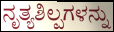
ನೃತ್ಯಶಿಲ್ಪಗಳನ್ನು